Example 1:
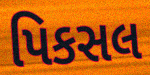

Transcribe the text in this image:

પિકસલ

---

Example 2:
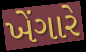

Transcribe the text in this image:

ખેંગારે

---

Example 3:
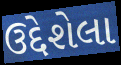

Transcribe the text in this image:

ઉદ્દેશેલા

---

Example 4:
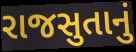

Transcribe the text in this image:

રાજસુતાનું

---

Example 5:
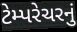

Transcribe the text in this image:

ટેમ્પરેચરનું